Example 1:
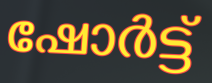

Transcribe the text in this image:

ഷോർട്ട്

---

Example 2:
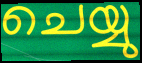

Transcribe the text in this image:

ചെയ്യു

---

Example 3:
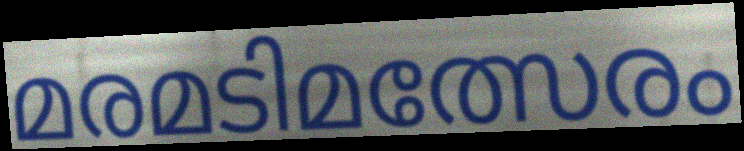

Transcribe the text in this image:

മരമടിമത്സേരം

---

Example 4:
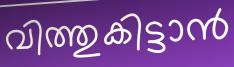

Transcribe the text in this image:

വിത്തുകിട്ടാൻ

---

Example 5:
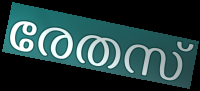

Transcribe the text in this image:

രേതസ്